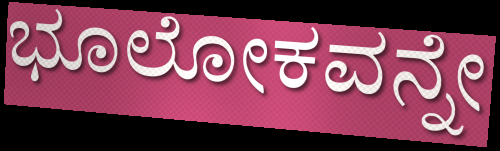
ಭೂಲೋಕವನ್ನೇ